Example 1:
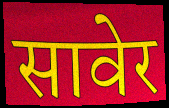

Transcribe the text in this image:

सावेर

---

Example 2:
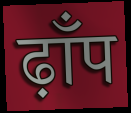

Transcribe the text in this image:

ढ़ाँप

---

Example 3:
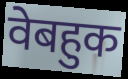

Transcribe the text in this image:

वेबहुक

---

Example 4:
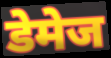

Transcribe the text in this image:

डेमेज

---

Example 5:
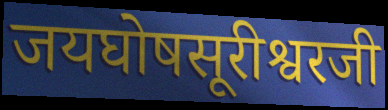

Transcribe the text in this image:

जयघोषसूरीश्वरजी